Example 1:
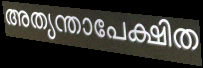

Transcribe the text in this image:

അത്യന്താപേക്ഷിത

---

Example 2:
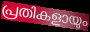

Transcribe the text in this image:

പ്രതികളായും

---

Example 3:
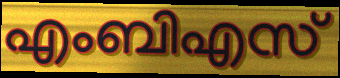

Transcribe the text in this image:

എംബിഎസ്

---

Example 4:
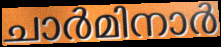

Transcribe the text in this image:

ചാർമിനാർ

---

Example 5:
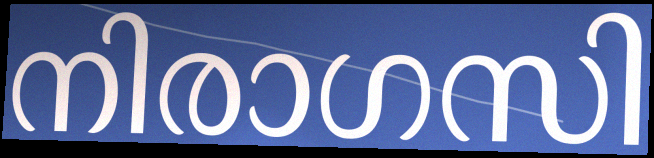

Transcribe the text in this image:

നിരാഗസി